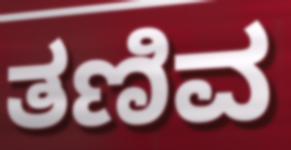
ತಣಿವ